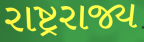
રાષ્ટ્રરાજ્ય